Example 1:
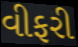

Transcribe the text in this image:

વીફરી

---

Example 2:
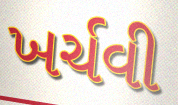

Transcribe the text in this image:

ખર્ચવી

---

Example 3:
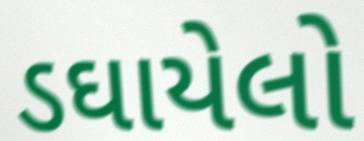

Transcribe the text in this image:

ડઘાયેલો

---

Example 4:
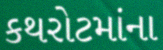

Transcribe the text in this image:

કથરોટમાંના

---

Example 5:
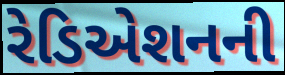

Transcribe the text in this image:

રેડિએશનની